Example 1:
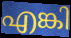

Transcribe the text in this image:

എങ്കി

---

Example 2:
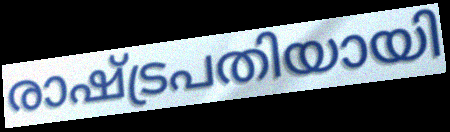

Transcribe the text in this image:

രാഷ്ട്രപതിയായി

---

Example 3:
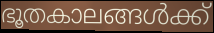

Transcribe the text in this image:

ഭൂതകാലങ്ങൾക്ക്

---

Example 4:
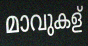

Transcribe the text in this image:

മാവുകള്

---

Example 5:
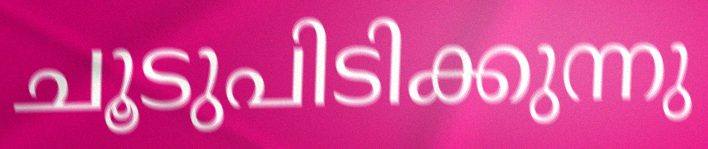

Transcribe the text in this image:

ചൂടുപിടിക്കുന്നു